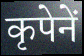
कृपेनें